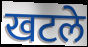
खटले